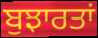
ਬੁਝਾਰਤਾਂ